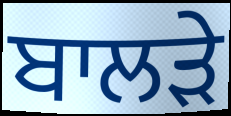
ਬਾਲੜੇ